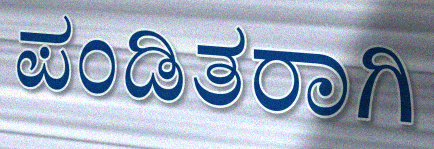
ಪಂಡಿತರಾಗಿ